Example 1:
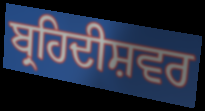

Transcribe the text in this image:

ਬ੍ਰਹਿਦੀਸ਼ਵਰ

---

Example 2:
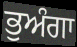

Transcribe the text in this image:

ਭੁਅੰਗਾ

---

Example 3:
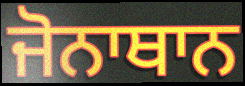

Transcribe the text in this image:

ਜੋਨਾਥਾਨ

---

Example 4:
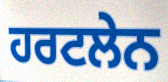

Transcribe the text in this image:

ਹਰਟਲੇਨ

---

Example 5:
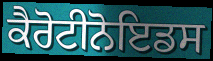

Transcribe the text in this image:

ਕੈਰੋਟੀਨੋਇਡਸ